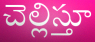
చెల్లిస్తూ